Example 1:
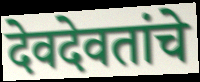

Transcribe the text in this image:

देवदेवतांचे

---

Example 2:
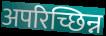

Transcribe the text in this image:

अपरिच्छिन्न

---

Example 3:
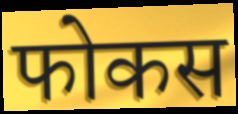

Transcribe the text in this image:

फोकस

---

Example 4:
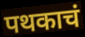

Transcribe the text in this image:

पथकाचं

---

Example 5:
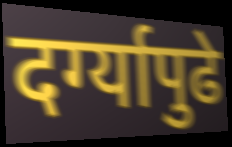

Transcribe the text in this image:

दर्ग्यापुढे